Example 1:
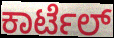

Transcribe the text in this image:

ಕಾರ್ಟೆಲ್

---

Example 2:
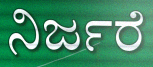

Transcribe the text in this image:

ನಿರ್ಜರೆ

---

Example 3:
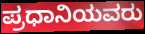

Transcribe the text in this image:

ಪ್ರಧಾನಿಯವರು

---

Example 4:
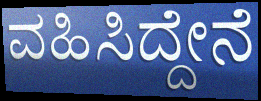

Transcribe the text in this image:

ವಹಿಸಿದ್ದೇನೆ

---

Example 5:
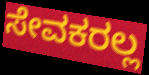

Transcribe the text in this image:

ಸೇವಕರಲ್ಲ